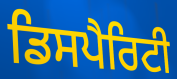
ਡਿਸਪੈਰਿਟੀ